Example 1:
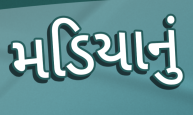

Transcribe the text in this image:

મડિયાનું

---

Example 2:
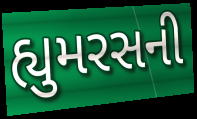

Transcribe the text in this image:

હ્યુમરસની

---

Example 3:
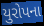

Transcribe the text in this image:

યુરોપના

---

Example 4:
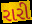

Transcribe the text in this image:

રારી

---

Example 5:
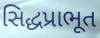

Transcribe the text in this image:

સિદ્ધપ્રાભૂત